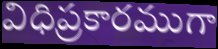
విధిప్రకారముగా